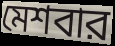
মেশবার